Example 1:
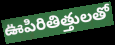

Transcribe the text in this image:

ఊపిరితిత్తులతో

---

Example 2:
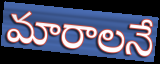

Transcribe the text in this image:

మారాలనే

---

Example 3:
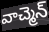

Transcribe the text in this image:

వాచ్మెన్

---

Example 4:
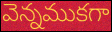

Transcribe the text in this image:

వెన్నముకగా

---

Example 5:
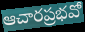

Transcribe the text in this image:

ఆచారప్రభవో